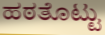
ಹಠತೊಟ್ಟು